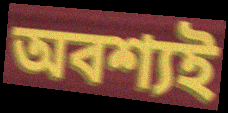
অবশ্যই